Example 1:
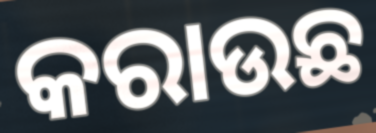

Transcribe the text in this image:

କରାଉଛ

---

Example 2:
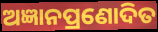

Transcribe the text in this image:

ଅଜ୍ଞାନପ୍ରଣୋଦିତ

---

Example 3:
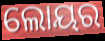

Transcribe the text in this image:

ଲୋୟର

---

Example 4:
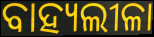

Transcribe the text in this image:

ବାହ୍ୟଲୀଳା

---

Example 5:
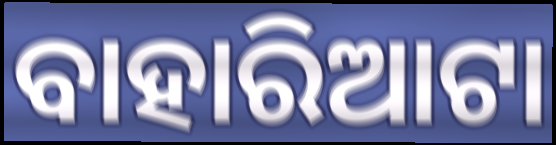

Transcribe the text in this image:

ବାହାରିଆଟା